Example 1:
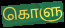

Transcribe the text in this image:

கொளு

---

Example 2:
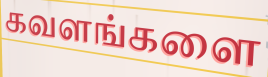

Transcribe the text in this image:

கவளங்களை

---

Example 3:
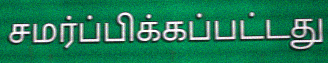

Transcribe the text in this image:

சமர்ப்பிக்கப்பட்டது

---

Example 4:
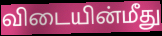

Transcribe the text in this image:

விடையின்மீது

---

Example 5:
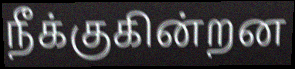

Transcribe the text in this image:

நீக்குகின்றன